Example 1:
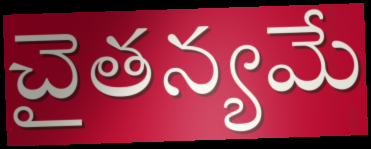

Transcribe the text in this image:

చైతన్యమే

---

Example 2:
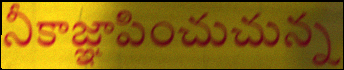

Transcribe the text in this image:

నీకాజ్ఞాపించుచున్న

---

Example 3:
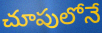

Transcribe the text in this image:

చూపులోనే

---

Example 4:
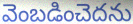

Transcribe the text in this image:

వెంబడించెదను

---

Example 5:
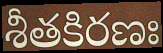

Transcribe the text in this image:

శీతకిరణః